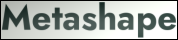
Metashape